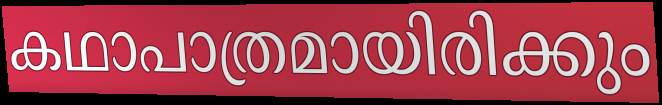
കഥാപാത്രമായിരിക്കും